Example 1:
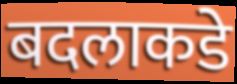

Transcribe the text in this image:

बदलाकडे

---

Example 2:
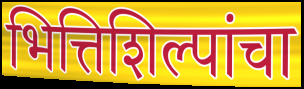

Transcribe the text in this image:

भित्तिशिल्पांचा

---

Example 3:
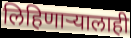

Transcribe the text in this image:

लिहिणाऱ्यालाही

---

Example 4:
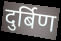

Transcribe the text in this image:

दुर्बिण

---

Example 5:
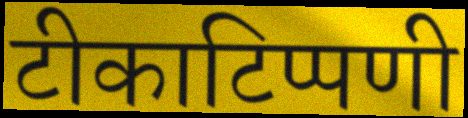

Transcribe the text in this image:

टीकाटिप्पणी